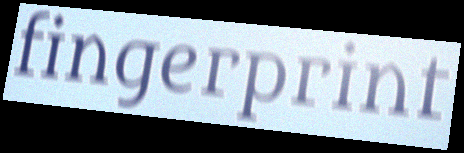
fingerprint